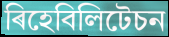
ৰিহেবিলিটেচন